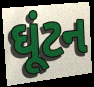
ઘૂંટન